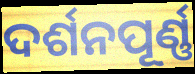
ଦର୍ଶନପୂର୍ଣ୍ଣ